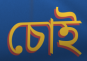
চোই